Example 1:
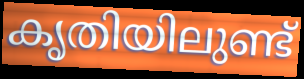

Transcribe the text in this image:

കൃതിയിലുണ്ട്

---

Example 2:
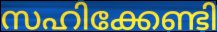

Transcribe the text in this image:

സഹിക്കേണ്ടി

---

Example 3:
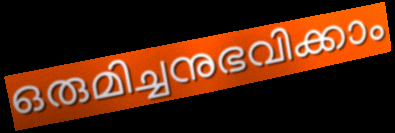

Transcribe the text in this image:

ഒരുമിച്ചനുഭവിക്കാം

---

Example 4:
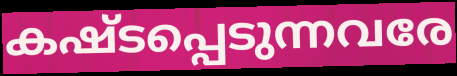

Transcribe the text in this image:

കഷ്ടപ്പെടുന്നവരേ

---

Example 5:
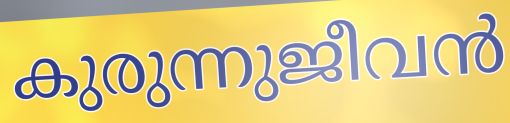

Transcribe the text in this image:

കുരുന്നുജീവൻ